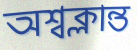
অশ্বক্লান্ত